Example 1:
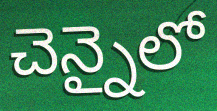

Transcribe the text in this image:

చెన్నైలో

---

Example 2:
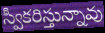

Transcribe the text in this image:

స్వీకరిస్తున్నావు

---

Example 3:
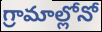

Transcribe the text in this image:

గ్రామాల్లోనో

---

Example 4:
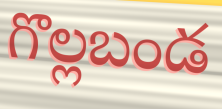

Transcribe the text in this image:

గొల్లబండ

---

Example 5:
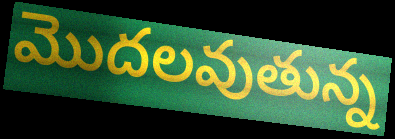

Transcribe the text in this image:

మొదలవుతున్న